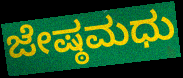
ಜೇಷ್ಠಮಧು